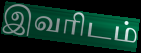
இவரிடம்